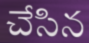
చేసిన